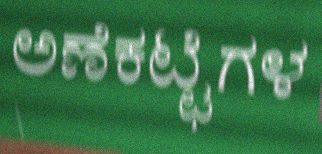
ಅಣೆಕಟ್ಟೆಗಳ